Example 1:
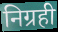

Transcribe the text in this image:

निग्रही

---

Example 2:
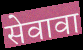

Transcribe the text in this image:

सेवावा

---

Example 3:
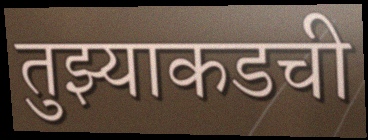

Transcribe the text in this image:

तुझ्याकडची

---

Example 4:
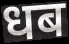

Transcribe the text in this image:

धब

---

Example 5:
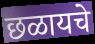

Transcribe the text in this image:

छळायचे